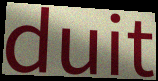
duit